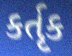
કર્તૃક